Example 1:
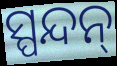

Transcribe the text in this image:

ସ୍ପନ୍ଦନ୍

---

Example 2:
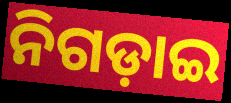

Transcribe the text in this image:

ନିଗଡ଼ାଇ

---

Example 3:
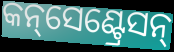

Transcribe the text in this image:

କନ୍‌ସେଣ୍ଟ୍ରେସନ୍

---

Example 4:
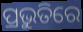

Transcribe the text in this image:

ପ୍ରଭୁତିରେ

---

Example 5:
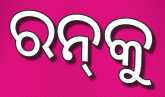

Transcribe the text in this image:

ରନ୍‌କୁ